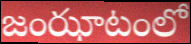
జంఝాటంలో